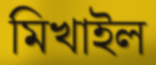
মিখাইল